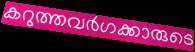
കറുത്തവർഗക്കാരുടെ